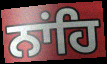
ਨਾਂਹਿ